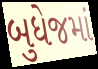
બુધેજમાં